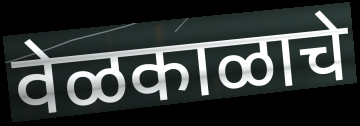
वेळकाळाचे